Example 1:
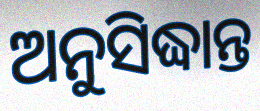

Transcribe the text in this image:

ଅନୁସିଦ୍ଧାନ୍ତ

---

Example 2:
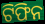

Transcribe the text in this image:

ଟିଫିନ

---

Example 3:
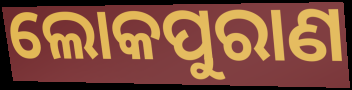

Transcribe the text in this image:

ଲୋକପୁରାଣ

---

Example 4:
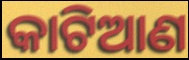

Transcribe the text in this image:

କାଟିଆଣ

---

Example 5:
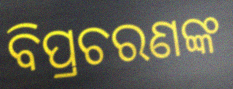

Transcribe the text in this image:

ବିପ୍ରଚରଣଙ୍କ